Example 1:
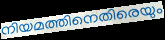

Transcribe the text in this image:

നിയമത്തിനെതിരെയും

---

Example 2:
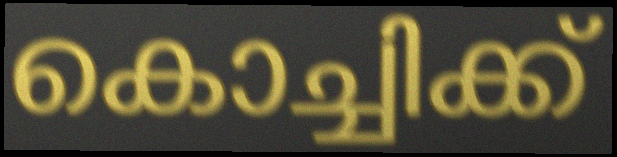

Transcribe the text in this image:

കൊച്ചിക്ക്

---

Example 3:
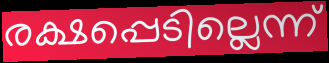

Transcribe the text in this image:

രക്ഷപ്പെടില്ലെന്ന്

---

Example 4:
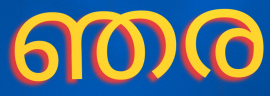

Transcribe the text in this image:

ഞര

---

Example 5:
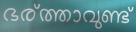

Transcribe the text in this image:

ഭര്ത്താവുണ്ട്